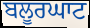
ਬਲੂਰਘਾਟ